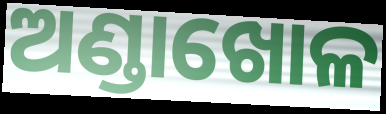
ଅଣ୍ଡାଖୋଳ